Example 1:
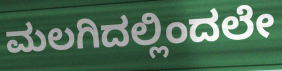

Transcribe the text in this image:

ಮಲಗಿದಲ್ಲಿಂದಲೇ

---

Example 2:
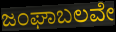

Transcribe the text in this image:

ಜಂಘಾಬಲವೇ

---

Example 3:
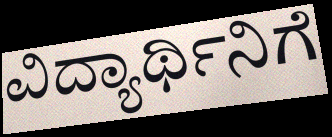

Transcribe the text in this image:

ವಿದ್ಯಾರ್ಥಿನಿಗೆ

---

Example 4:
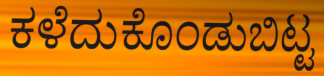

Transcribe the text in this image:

ಕಳೆದುಕೊಂಡುಬಿಟ್ಟ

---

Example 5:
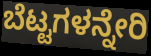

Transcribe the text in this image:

ಬೆಟ್ಟಗಳನ್ನೇರಿ